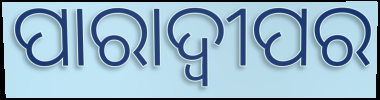
ପାରାଦ୍ବୀପର